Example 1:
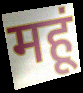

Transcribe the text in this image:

महूं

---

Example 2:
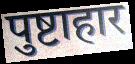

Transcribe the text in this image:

पुष्टाहार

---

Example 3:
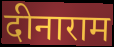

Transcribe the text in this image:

दीनाराम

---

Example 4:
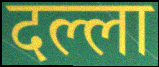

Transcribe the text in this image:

दल्ला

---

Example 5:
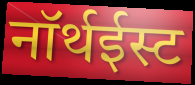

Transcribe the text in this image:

नॉर्थईस्ट